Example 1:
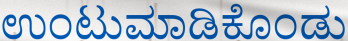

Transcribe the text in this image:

ಉಂಟುಮಾಡಿಕೊಂಡು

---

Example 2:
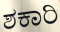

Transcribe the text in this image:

ಶಕಾರಿ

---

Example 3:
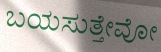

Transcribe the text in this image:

ಬಯಸುತ್ತೇವೋ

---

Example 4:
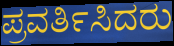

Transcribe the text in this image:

ಪ್ರವರ್ತಿಸಿದರು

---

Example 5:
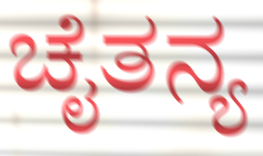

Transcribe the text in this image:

ಚೈತನ್ಯ